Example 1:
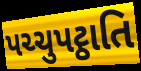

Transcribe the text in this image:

પચ્ચુપટ્ઠાતિ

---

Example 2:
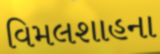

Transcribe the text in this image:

વિમલશાહના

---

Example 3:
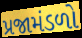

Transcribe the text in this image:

પ્રજામંડળો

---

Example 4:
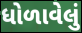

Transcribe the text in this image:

ધોળાવેલું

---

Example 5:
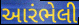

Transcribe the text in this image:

આરંભેલી